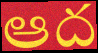
ఆద